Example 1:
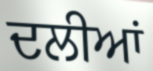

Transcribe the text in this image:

ਦਲੀਆਂ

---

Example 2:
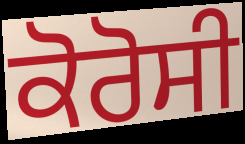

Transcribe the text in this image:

ਕੋਰੋਸੀ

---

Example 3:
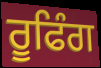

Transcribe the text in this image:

ਰੂਫਿੰਗ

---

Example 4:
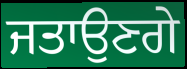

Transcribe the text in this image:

ਜਤਾਉਣਗੇ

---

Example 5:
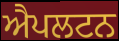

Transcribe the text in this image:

ਐਪਲਟਨ